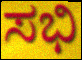
ಸಭಿ